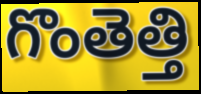
గొంతెత్తి